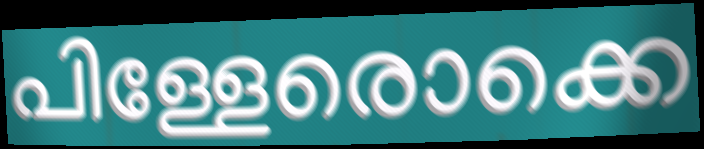
പിള്ളേരൊക്കെ